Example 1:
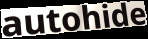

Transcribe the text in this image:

autohide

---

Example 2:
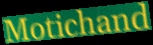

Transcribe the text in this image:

Motichand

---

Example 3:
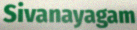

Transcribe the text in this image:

Sivanayagam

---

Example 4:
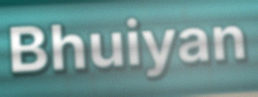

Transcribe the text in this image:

Bhuiyan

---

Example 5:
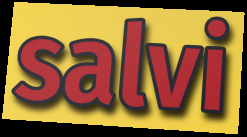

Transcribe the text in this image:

salvi